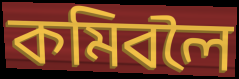
কমিবলৈ